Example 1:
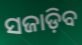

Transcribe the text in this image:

ସଜାଡ଼ିବ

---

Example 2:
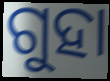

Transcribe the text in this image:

ଗୁହା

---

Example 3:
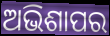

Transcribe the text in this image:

ଅଭିଶାପର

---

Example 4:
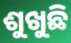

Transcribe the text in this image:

ଶୁଖୁଛି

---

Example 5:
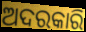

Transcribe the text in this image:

ଅଦରକାରି